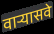
वाऱ्यासवे